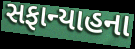
સફાન્યાહના